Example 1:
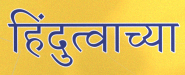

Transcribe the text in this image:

हिंदुत्वाच्या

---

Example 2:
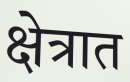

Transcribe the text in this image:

क्षेत्रात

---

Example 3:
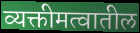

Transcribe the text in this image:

व्यक्तीमत्वातील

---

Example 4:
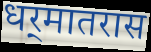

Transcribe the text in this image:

धर्मातरास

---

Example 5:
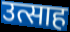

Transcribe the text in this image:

उत्साह